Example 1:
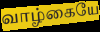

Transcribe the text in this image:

வாழ்கையே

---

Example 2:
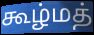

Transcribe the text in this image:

கூழ்மத்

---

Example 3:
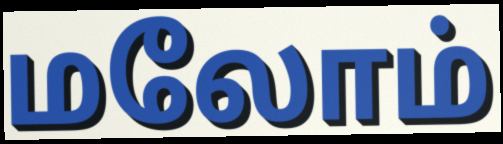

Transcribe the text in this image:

மலோம்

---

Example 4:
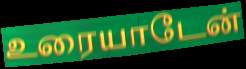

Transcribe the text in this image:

உரையாடேன்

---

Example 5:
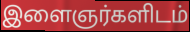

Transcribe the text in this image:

இளைஞர்களிடம்